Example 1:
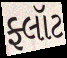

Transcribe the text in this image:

ફ્લૉટ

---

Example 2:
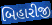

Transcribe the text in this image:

બિહારીજી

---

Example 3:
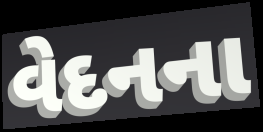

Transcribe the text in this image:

વેદનના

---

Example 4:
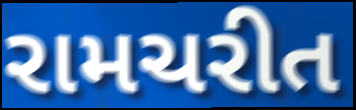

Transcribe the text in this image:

રામચરીત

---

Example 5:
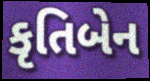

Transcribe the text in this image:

કૃતિબેન